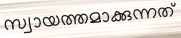
സ്വായത്തമാക്കുന്നത്